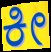
ಕೀ